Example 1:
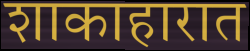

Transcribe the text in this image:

शाकाहारात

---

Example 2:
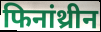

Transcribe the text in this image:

फिनांथ्रीन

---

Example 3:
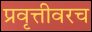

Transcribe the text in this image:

प्रवृत्तीवरच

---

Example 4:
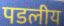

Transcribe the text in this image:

पडलीय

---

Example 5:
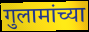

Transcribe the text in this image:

गुलामांच्या